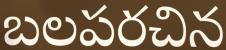
బలపరచిన